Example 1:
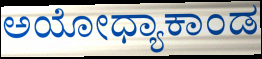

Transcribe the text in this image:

ಅಯೋಧ್ಯಾಕಾಂಡ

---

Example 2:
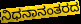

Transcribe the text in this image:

ನಿಧನಾನಂತರದ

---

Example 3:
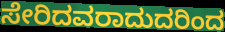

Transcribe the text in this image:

ಸೇರಿದವರಾದುದರಿಂದ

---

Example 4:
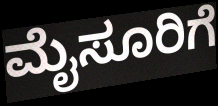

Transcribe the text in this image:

ಮೈಸೂರಿಗೆ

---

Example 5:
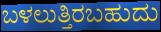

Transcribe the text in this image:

ಬಳಲುತ್ತಿರಬಹುದು